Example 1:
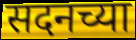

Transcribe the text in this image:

सदनच्या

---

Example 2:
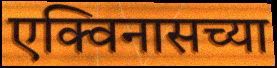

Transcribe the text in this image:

एक्विनासच्या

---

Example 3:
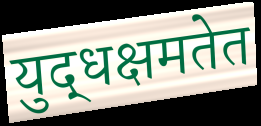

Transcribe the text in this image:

युद्धक्षमतेत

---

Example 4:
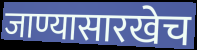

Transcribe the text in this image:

जाण्यासारखेच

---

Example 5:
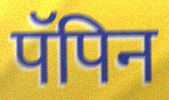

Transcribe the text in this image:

पॅपिन